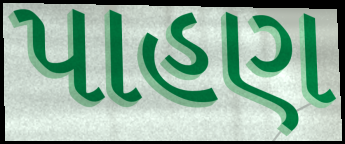
પાહણ